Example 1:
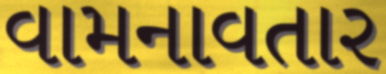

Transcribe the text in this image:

વામનાવતાર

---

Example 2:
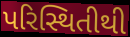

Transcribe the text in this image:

પરિસ્થિતીથી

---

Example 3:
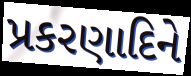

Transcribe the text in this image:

પ્રકરણાદિને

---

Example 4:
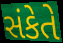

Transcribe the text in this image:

સંકેતે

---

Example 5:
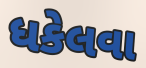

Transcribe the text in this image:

ધકેલવા